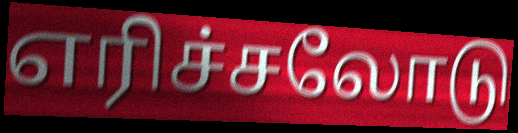
எரிச்சலோடு